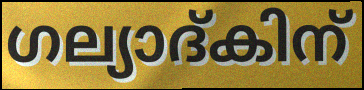
ഗല്യാദ്കിന്